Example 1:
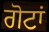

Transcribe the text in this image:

ਗੋਟਾਂ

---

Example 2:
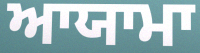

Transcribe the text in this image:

ਆਯਾਮਾ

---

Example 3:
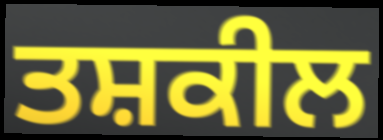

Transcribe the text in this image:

ਤਸ਼ਕੀਲ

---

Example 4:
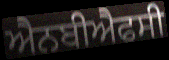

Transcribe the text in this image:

ਐਨਬੀਐਫਸੀ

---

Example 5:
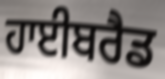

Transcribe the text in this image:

ਹਾਈਬਰੈਡ